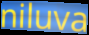
niluva